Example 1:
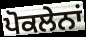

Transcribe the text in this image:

ਪੋਕਲੇਨਾਂ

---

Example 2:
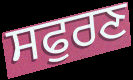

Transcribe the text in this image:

ਸਫੁਰਣ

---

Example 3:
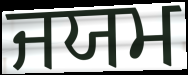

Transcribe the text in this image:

ਜਯਮ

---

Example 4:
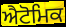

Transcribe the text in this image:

ਐਟੋਮਿਕ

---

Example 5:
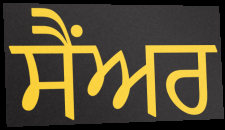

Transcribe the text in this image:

ਸੈਂਅਰ